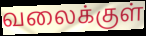
வலைக்குள்